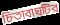
চিতাবাঘটির